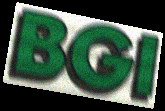
BGI